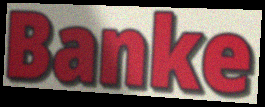
Banke